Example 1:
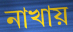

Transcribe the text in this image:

নাখায়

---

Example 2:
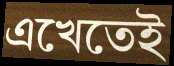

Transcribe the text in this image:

এখেতেই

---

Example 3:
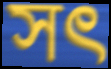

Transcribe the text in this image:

সৎ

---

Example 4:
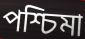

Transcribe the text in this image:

পশ্চিমা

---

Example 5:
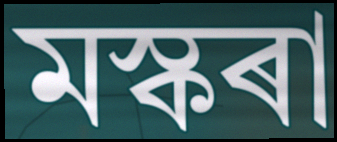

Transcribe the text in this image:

মস্কৰা